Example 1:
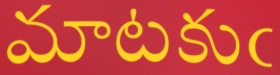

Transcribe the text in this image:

మాటకుఁ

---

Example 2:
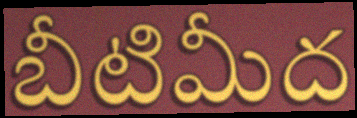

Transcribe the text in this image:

బీటిమీద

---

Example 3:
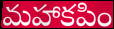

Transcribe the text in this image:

మహాకపిం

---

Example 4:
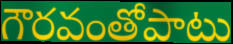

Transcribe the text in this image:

గౌరవంతోపాటు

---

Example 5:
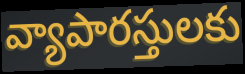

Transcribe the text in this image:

వ్యాపారస్తులకు